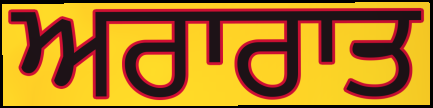
ਅਰਾਰਾਤ